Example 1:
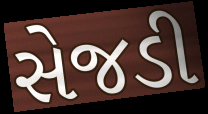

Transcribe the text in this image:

સેજડી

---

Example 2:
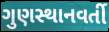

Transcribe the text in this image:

ગુણસ્થાનવર્તી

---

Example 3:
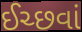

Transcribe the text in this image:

ઈચ્છવાં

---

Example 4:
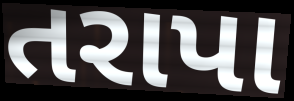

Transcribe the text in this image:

તરાપા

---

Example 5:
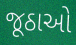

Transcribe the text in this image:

જૂઠાઓ